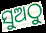
ସୁଅଠୁ